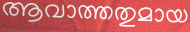
ആവാത്തതുമായ